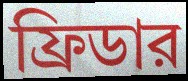
ফ্রিডার